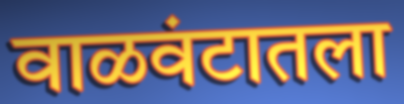
वाळवंटातला